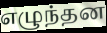
எழுந்தன